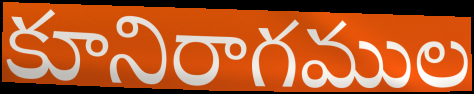
కూనిరాగముల